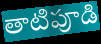
తాటిపూడి